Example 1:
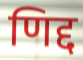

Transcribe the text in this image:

णिद्द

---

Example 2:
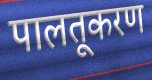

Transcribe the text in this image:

पालतूकरण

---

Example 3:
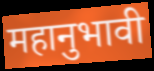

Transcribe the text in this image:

महानुभावी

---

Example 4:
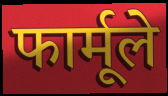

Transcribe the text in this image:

फार्मूले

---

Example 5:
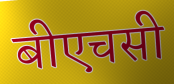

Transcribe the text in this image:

बीएचसी